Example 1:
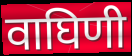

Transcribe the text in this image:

वाघिणी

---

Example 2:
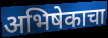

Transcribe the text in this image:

अभिषेकाचा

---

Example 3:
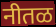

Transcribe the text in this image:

नीतळ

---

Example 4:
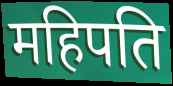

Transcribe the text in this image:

महिपति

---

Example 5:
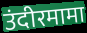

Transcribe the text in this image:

उंदीरमामा